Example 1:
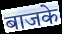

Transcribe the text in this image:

बाजके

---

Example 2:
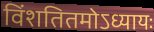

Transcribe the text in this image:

विंशतितमोऽध्यायः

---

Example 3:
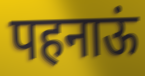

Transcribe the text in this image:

पहनाऊं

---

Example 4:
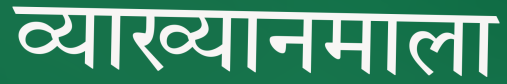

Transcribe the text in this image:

व्याख्यानमाला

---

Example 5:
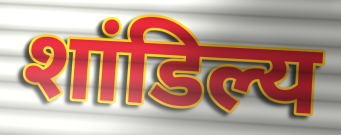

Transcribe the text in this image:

शांडिल्य